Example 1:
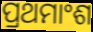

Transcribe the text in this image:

ପ୍ରଥମାଂଶ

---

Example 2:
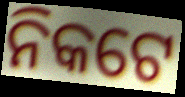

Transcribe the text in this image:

ନିକଟେ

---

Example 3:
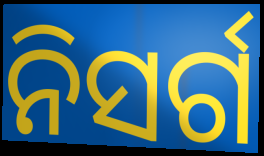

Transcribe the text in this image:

ନିସର୍ଗ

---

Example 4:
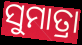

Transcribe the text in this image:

ସୁମାତ୍ରା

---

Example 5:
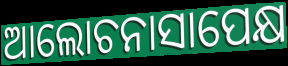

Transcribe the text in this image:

ଆଲୋଚନାସାପେକ୍ଷ